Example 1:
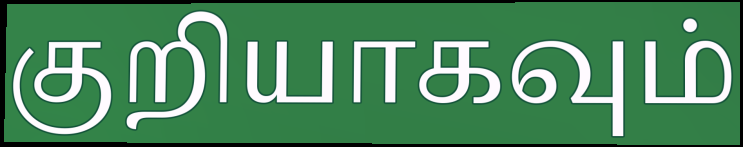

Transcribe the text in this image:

குறியாகவும்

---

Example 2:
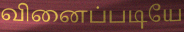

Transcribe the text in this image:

வினைப்படியே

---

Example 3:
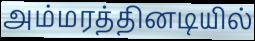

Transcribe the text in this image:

அம்மரத்தினடியில்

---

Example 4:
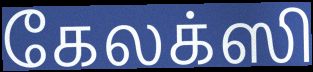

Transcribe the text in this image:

கேலக்ஸி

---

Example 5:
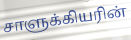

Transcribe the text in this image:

சாளுக்கியரின்